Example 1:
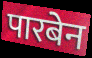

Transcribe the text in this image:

पारबेन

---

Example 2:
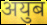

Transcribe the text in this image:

अयुब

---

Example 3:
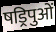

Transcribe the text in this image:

षड्रिपुओं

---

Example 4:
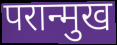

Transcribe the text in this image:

परान्मुख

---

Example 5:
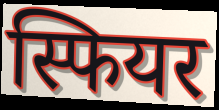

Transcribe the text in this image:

स्फियर